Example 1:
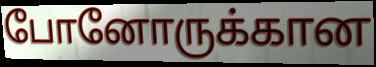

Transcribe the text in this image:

போனோருக்கான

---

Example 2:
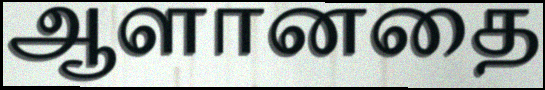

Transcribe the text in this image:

ஆளானதை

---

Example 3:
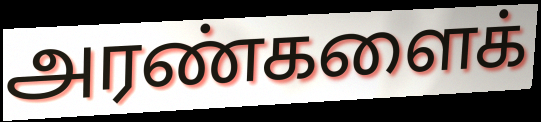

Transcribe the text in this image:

அரண்களைக்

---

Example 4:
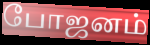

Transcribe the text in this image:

போஜனம்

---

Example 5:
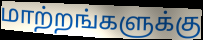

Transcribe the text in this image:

மாற்றங்களுக்கு